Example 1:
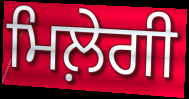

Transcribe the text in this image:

ਮਿਲ਼ੇਗੀ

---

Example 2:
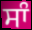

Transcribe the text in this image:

ਸਾੰ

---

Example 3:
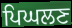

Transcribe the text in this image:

ਪਿਘਲਣ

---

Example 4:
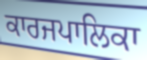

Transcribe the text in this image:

ਕਾਰਜਪਾਲਿਕਾ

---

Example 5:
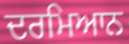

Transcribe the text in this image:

ਦਰਮਿਆਨ